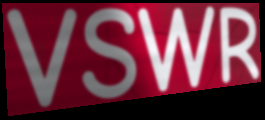
VSWR